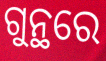
ଗୁନ୍ଥରେ